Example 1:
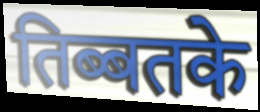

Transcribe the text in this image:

तिब्बतके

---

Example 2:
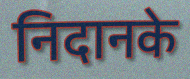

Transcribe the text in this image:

निदानके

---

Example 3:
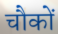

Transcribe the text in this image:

चौकों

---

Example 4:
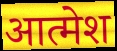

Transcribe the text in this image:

आत्मेश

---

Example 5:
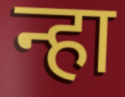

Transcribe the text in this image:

न्हा